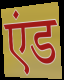
एंड